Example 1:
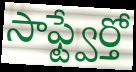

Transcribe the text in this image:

సాఫ్ట్వేర్తో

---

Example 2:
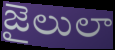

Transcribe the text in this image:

జైలులా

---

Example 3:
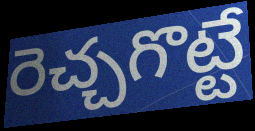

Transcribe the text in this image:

రెచ్చగొట్టే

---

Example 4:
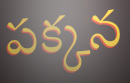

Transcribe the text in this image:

పక్కన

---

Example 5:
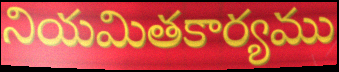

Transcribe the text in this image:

నియమితకార్యము